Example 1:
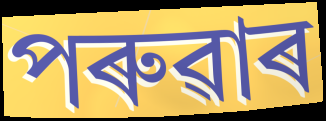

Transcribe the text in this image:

পৰুৱাৰ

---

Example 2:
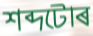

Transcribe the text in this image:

শব্দটোৰ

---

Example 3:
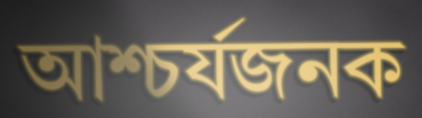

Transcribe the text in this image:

আশ্চৰ্যজনক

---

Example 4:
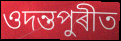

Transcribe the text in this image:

ওদন্তপুৰীত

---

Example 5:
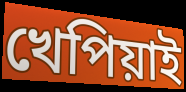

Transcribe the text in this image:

খেপিয়াই